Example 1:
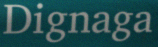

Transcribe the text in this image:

Dignaga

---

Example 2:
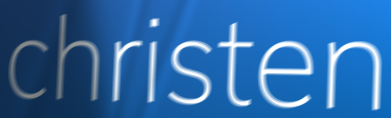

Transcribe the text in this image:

christen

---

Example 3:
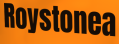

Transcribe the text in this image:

Roystonea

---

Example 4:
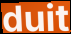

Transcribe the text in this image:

duit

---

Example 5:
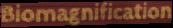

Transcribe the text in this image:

Biomagnification